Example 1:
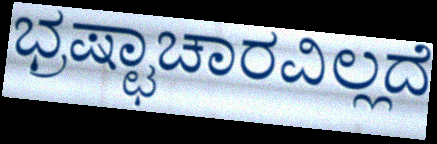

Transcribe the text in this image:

ಭ್ರಷ್ಟಾಚಾರವಿಲ್ಲದೆ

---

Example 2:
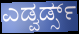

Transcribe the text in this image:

ಎಡ್ವರ್ಡ್ಸ್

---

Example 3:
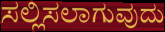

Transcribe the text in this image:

ಸಲ್ಲಿಸಲಾಗುವುದು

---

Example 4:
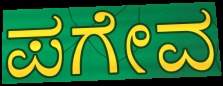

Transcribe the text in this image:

ಪಗೇವ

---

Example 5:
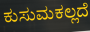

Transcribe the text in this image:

ಕುಸುಮಕಲ್ಲದೆ